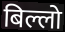
बिल्लो